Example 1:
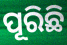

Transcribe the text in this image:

ପୂରିଛି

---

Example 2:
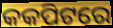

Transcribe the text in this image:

କକପିଟରେ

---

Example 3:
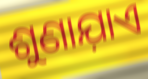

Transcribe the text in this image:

ଶୁଣାଯ଼ାଏ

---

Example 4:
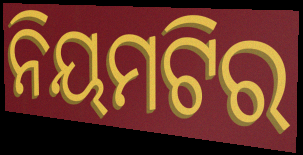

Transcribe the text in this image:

ନିୟମଟିର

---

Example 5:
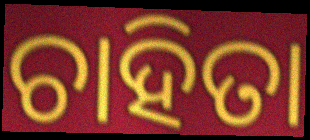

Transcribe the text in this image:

ଚାହିତା